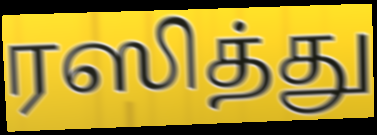
ரஸித்து